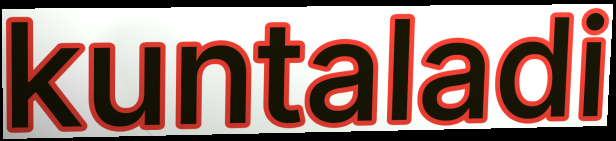
kuntaladi